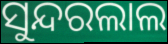
ସୁନ୍ଦରଲାଲ